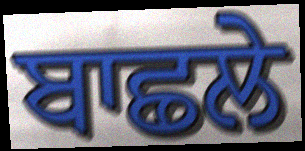
ਬਾਛਲੇ